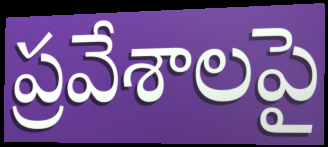
ప్రవేశాలపై